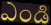
ఎండి